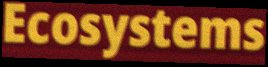
Ecosystems